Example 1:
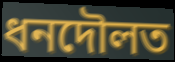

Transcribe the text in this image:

ধনদৌলত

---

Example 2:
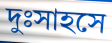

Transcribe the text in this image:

দুঃসাহসে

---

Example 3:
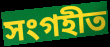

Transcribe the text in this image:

সংগহীত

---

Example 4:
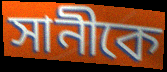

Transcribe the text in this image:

সানীকে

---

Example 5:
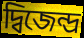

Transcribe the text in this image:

দ্বিজেন্দ্র